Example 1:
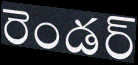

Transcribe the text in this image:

రెండర్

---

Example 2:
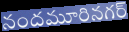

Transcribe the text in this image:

నందమూరినగర్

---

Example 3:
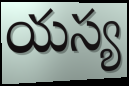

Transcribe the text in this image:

యస్య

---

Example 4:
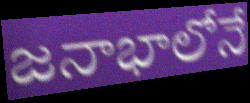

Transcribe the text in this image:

జనాభాలోనే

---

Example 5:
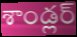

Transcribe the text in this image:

శాండ్లర్